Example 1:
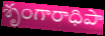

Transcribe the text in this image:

శృంగారాధిపా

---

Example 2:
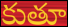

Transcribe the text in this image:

కుతూ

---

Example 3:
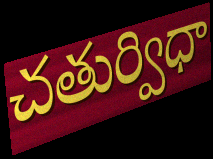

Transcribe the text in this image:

చతుర్విధా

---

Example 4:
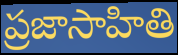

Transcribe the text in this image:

ప్రజాసాహితి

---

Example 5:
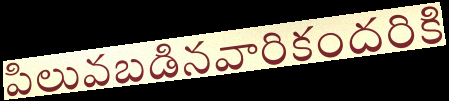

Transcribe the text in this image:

పిలువబడినవారికందరికి